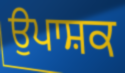
ਉਪਾਸ਼ਕ